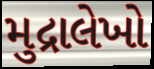
મુદ્રાલેખો